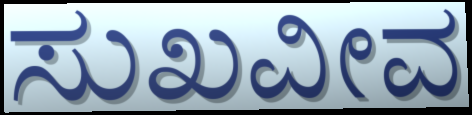
ಸುಖವೀವ